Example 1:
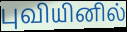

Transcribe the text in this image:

புவியினில்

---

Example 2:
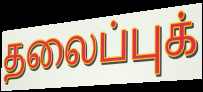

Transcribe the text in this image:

தலைப்புக்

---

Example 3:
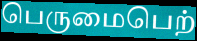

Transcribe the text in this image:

பெருமைபெற்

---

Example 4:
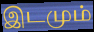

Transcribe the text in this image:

இடமும்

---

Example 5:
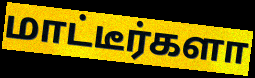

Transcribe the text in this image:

மாட்டீர்களா